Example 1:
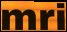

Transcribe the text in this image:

mri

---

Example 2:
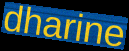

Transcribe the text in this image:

dharine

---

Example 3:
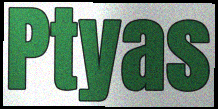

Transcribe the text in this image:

Ptyas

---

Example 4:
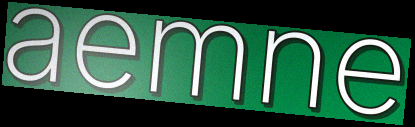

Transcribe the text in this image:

aemne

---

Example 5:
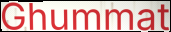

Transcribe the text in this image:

Ghummat